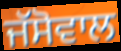
ਜੱਸੋਵਾਲ